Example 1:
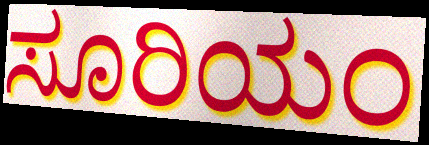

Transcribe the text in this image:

ಸೂರಿಯಂ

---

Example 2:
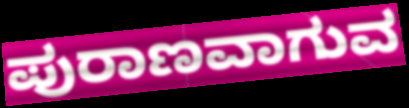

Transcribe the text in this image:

ಪುರಾಣವಾಗುವ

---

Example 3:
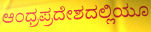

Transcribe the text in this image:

ಆಂಧ್ರಪ್ರದೇಶದಲ್ಲಿಯೂ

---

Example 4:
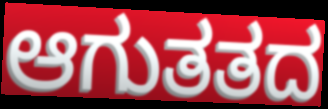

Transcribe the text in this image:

ಆಗುತತದ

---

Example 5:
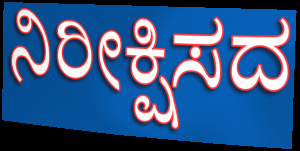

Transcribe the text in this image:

ನಿರೀಕ್ಷಿಸದ